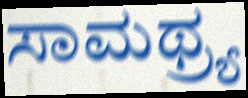
ಸಾಮಥ್ರ್ಯ